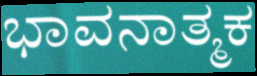
ಭಾವನಾತ್ಮಕ